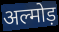
अल्मोड़